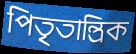
পিতৃতান্ত্রিক